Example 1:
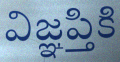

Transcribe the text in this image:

విజ్ఞప్తికి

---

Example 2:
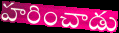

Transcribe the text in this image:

హరించాడు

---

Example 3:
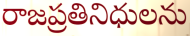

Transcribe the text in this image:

రాజప్రతినిధులను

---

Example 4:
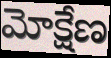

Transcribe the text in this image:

మోక్షేణ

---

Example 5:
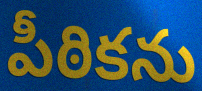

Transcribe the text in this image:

పీఠికను